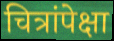
चित्रांपेक्षा